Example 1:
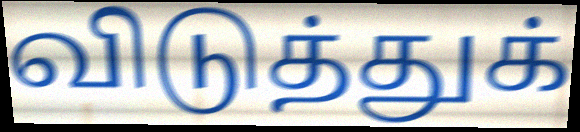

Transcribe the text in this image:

விடுத்துக்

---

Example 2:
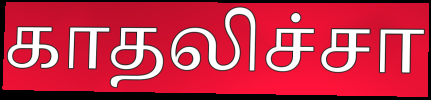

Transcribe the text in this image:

காதலிச்சா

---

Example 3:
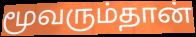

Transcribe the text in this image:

மூவரும்தான்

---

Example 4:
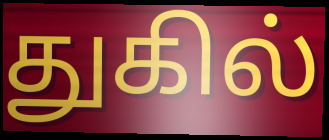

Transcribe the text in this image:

துகில்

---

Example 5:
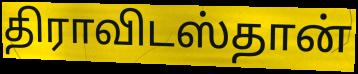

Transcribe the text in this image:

திராவிடஸ்தான்